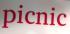
picnic